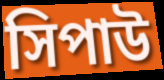
সিপাউ